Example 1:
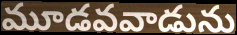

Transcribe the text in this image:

మూడవవాడును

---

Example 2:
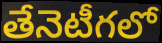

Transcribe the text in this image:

తేనెటీగలో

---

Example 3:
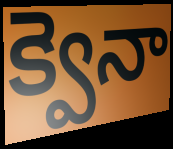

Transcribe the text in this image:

క్వెనా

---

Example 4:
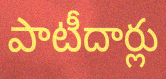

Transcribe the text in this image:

పాటీదార్లు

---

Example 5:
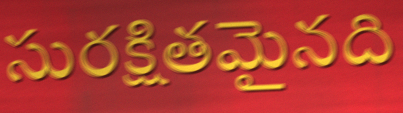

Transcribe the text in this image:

సురక్షితమైనది